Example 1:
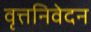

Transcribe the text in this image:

वृत्तनिवेदन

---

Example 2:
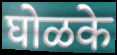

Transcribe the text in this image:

घोळके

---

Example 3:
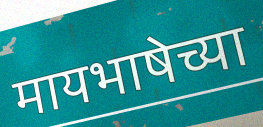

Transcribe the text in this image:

मायभाषेच्या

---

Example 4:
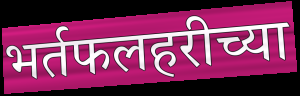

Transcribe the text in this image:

भर्तफलहरीच्या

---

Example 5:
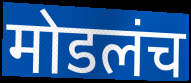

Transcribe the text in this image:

मोडलंच